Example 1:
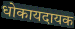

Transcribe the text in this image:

धोकायदायक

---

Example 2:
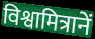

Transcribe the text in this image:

विश्वामित्रानें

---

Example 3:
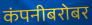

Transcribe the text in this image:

कंपनीबरोबर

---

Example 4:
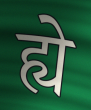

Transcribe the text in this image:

ह्ये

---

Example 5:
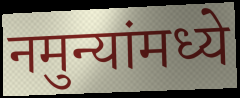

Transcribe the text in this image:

नमुन्यांमध्ये